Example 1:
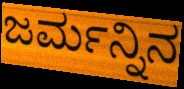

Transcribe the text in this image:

ಜರ್ಮನ್ನಿನ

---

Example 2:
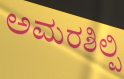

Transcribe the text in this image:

ಅಮರಶಿಲ್ಪಿ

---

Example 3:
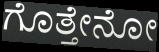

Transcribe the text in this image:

ಗೊತ್ತೇನೋ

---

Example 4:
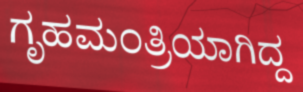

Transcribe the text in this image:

ಗೃಹಮಂತ್ರಿಯಾಗಿದ್ದ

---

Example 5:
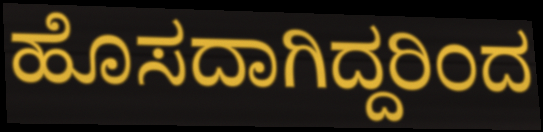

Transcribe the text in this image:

ಹೊಸದಾಗಿದ್ದರಿಂದ